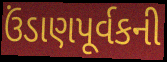
ઉંડાણપૂર્વકની